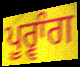
ਪੂਰ੍ਵਾੰਗ